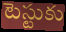
టెస్టుకు